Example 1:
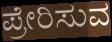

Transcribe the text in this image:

ಪ್ರೇರಿಸುವ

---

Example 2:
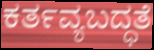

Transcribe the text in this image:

ಕರ್ತವ್ಯಬದ್ಧತೆ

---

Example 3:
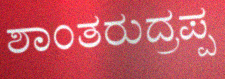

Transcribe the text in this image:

ಶಾಂತರುದ್ರಪ್ಪ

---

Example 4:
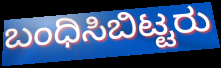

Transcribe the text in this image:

ಬಂಧಿಸಿಬಿಟ್ಟರು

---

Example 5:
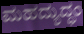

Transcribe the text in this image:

ಮಹದ್ಯುದ್ಧಂ